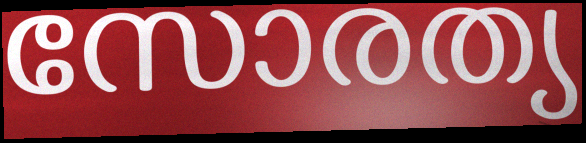
സോരത്യ